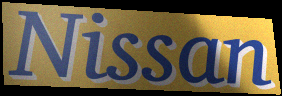
Nissan